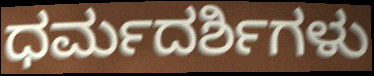
ಧರ್ಮದರ್ಶಿಗಳು